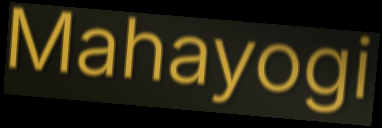
Mahayogi